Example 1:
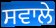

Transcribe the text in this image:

ਸਵਾਲੇ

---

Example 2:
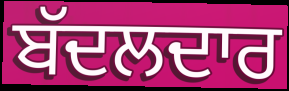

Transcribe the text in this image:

ਬੱਦਲਦਾਰ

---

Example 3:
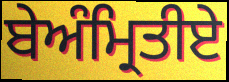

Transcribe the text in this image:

ਬੇਅੰਮ੍ਰਿਤੀਏ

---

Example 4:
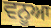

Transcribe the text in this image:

ਵਨੂਆ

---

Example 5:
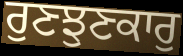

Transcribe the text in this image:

ਰੁਣਝੁਣਕਾਰੁ